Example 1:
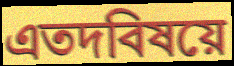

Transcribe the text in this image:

এতদবিষয়ে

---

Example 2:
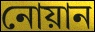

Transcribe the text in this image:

নোয়ান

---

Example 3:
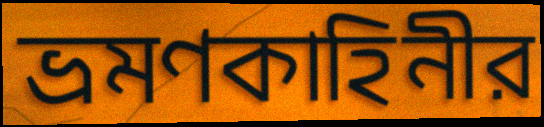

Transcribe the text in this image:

ভ্রমণকাহিনীর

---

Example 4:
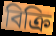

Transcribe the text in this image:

বিক্রি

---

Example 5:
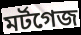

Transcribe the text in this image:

মর্টগেজ